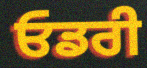
ਓਡਰੀ